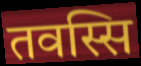
तवस्सि